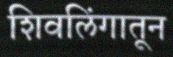
शिवलिंगातून